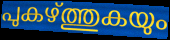
പുകഴ്ത്തുകയും